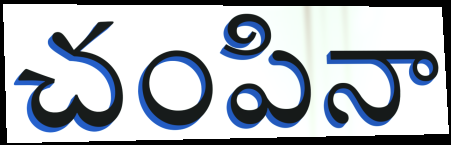
చంపినా